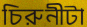
চিরুনীটা